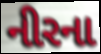
નીરના